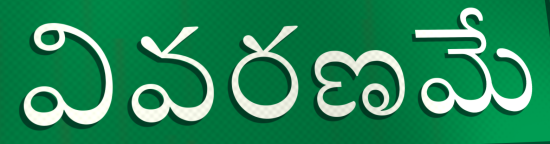
వివరణమే